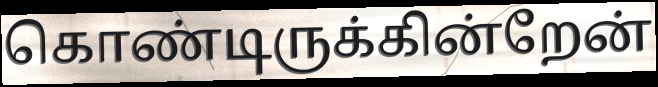
கொண்டிருக்கின்றேன்